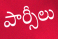
పార్సీలు